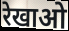
रेखाओ